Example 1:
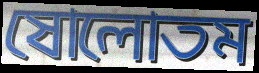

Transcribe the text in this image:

ষোলোতম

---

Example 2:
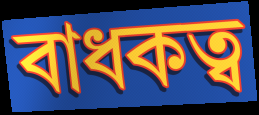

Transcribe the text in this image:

বাধকত্ব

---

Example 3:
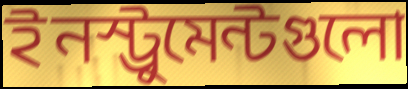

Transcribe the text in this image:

ইনস্ট্রুমেন্টগুলো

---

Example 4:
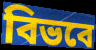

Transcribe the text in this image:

বিভবে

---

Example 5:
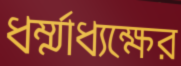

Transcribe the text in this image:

ধর্ম্মাধ্যক্ষের